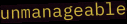
unmanageable